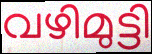
വഴിമുട്ടി